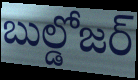
బుల్డోజర్